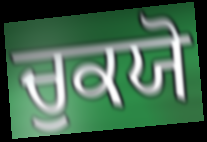
ਚੁਕਯੋ